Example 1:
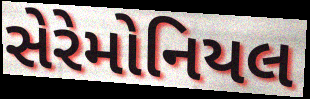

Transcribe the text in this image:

સેરેમોનિયલ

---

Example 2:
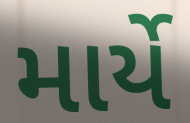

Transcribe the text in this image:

માર્યે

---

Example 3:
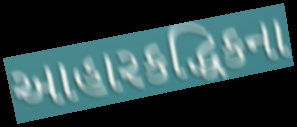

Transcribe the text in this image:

આહારકદ્ધિકના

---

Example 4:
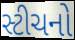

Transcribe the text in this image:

સ્ટીચનો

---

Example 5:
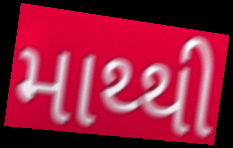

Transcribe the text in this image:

માથ્થી